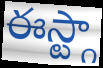
ఈస్ట్గా